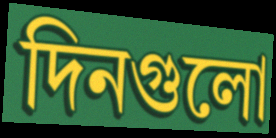
দিনগুলো